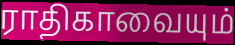
ராதிகாவையும்